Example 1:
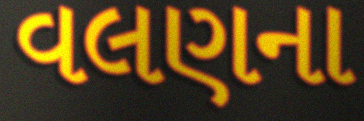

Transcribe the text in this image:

વલણના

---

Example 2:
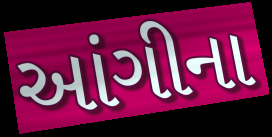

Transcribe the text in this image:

આંગીના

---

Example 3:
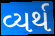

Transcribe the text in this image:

વ્યર્થ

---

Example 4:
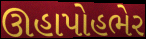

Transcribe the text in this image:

ઊહાપોહભેર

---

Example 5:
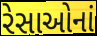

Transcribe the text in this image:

રેસાઓનાં